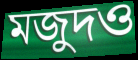
মজুদও